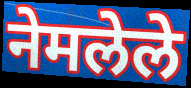
नेमलेले